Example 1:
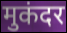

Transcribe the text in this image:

मुकंदर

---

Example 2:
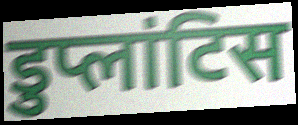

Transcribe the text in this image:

डुप्लांटिस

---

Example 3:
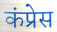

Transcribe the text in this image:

कंप्रेस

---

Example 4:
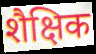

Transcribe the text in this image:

शैक्षिक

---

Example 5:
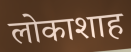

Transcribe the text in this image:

लोकाशाह